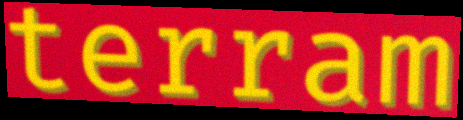
terram